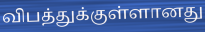
விபத்துக்குள்ளானது